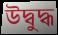
উদ্বুদ্ধ